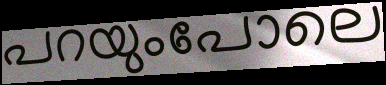
പറയുംപോലെ